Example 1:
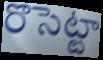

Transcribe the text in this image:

రొసెట్టా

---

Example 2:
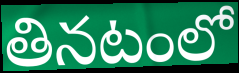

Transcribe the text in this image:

తినటంలో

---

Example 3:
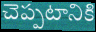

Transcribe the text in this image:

చెప్పటానికి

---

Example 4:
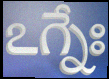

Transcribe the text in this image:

ఽగ్నేః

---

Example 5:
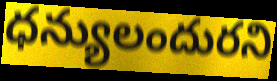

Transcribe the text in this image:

ధన్యులందురని